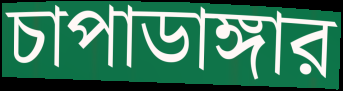
চাপাডাঙ্গার